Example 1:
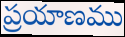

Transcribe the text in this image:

ప్రయాణము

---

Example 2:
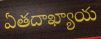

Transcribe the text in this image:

ఏతదాఖ్యాయ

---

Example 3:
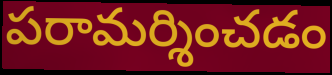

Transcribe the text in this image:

పరామర్శించడం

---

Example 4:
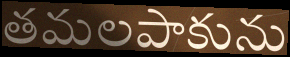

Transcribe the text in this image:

తమలపాకును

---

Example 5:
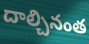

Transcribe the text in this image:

దాల్చినంత